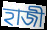
হাজী